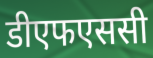
डीएफएससी